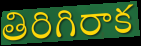
తిరిగిరాక